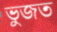
ভুজত